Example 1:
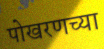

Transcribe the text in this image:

पोखरणच्या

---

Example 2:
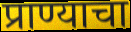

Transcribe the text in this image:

प्राण्याचा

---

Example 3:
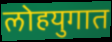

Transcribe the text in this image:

लोहयुगात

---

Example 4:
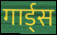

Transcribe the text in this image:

गार्ड्स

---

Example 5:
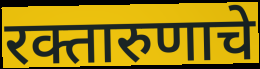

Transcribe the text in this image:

रक्तारुणाचे